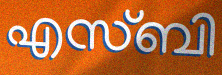
എസ്ബി